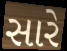
સારે